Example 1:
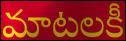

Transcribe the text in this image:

మాటలకీ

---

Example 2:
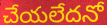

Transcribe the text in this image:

చేయలేదనో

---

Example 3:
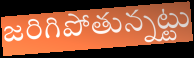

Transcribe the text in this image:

జరిగిపోతున్నట్టు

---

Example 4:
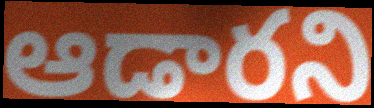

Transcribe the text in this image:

ఆడారని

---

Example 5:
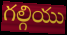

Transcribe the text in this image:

గల్గియు